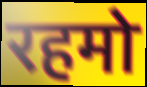
रहमो